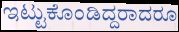
ಇಟ್ಟುಕೊಂಡಿದ್ದರಾದರೂ